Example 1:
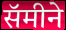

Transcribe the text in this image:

सॅमीने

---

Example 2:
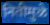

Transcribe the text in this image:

नितीमुळे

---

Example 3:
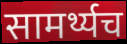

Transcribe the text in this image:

सामर्थ्यच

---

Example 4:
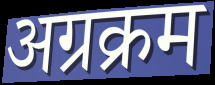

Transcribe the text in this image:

अग्रक्रम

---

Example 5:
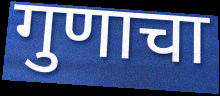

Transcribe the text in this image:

गुणाचा